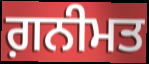
ਗ਼ਨੀਮਤ